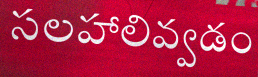
సలహాలివ్వడం